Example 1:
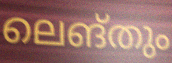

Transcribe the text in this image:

ലെങ്തും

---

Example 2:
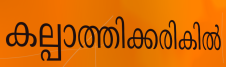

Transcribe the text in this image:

കല്പാത്തിക്കരികിൽ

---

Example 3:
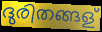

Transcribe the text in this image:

ദുരിതങ്ങള്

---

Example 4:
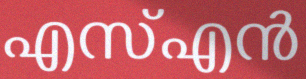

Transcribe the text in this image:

എസ്എൻ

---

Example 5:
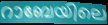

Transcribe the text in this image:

റാബേയിലെ